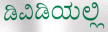
ಡಿವಿಡಿಯಲ್ಲಿ